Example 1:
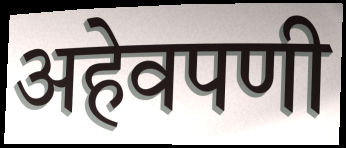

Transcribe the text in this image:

अहेवपणी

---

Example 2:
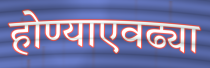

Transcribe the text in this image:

होण्याएवढ्या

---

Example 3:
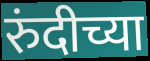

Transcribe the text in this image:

रुंदीच्या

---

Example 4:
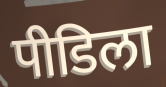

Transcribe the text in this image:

पीडिला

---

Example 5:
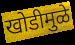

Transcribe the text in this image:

खोडीमुळे